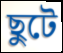
ছুটে